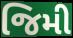
જિમી